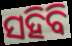
ସହିବି